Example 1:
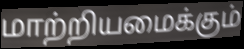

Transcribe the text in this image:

மாற்றியமைக்கும்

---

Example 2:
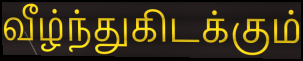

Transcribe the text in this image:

வீழ்ந்துகிடக்கும்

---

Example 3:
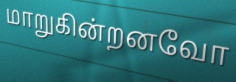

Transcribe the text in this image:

மாறுகின்றனவோ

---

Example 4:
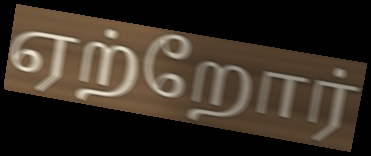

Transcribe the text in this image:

ஏற்றோர்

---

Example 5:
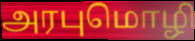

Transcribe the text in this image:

அரபுமொழி